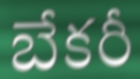
బేకరీ